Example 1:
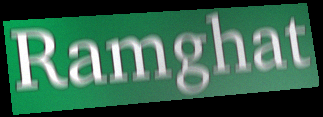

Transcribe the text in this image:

Ramghat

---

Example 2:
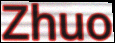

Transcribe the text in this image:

Zhuo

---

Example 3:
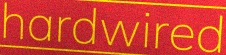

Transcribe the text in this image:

hardwired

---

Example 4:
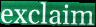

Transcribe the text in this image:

exclaim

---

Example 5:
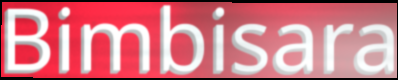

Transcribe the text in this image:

Bimbisara